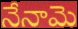
నేనామె